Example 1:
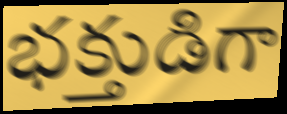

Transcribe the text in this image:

భక్తుడిగా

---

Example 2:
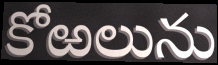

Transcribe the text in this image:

కోఱలును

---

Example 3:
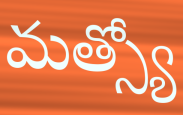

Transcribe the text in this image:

మత్స్యో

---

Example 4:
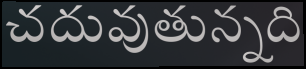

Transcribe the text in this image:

చదువుతున్నది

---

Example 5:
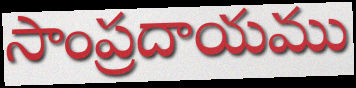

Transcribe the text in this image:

సాంప్రదాయము